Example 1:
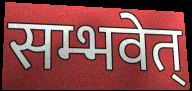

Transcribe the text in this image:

सम्भवेत्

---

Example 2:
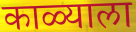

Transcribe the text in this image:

काळ्याला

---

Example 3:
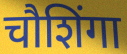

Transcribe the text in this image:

चौशिंगा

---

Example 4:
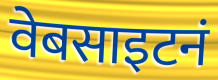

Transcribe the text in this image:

वेबसाइटनं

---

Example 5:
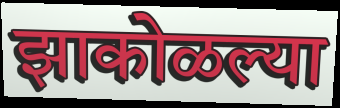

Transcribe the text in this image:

झाकोळल्या